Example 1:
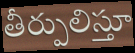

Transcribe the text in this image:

తీర్పులిస్తూ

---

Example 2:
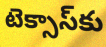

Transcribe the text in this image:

టెక్సాస్‌కు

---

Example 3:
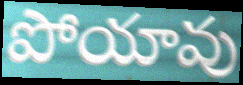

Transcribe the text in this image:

పోయావు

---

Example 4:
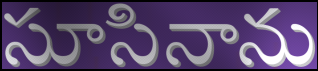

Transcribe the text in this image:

సూసినాను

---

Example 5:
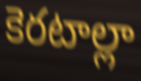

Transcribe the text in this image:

కెరటాల్లా